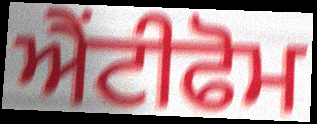
ਐਂਟੀਫੋਮ